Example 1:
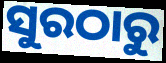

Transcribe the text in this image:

ସୁରଠାରୁ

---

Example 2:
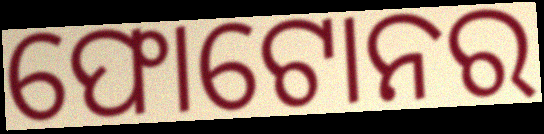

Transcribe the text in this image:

ଫୋଟୋନର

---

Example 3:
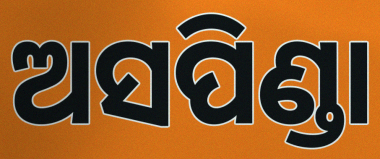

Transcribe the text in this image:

ଅସପିଣ୍ଡା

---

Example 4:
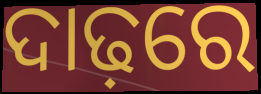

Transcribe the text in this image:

ଦାଢ଼ରେ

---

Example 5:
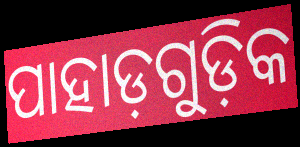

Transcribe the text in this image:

ପାହାଡ଼ଗୁଡ଼ିକ